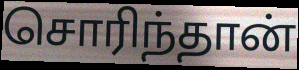
சொரிந்தான்